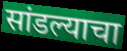
सांडल्याचा